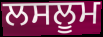
ਲਸਲੂਮ